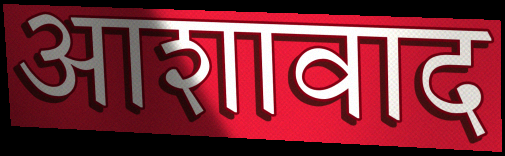
आशावाद